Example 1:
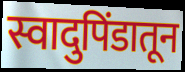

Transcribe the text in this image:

स्वादुपिंडातून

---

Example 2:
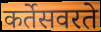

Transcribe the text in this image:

कर्तेसवरते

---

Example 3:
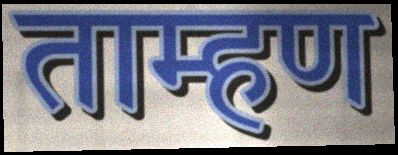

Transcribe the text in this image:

ताम्हण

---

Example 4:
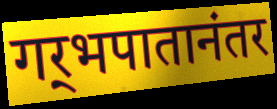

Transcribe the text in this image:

गर्भपातानंतर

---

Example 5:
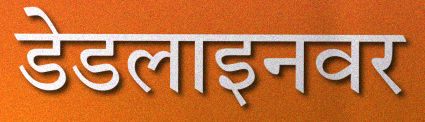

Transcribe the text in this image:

डेडलाइनवर